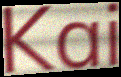
Kai